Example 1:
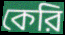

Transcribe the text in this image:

কেরি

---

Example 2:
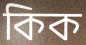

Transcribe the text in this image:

কিক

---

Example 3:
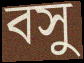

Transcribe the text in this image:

বসু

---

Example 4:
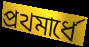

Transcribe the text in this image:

প্রথমার্ধে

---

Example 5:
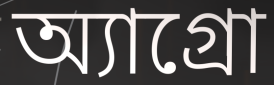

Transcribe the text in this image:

অ্যাগ্রো